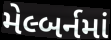
મેલ્બર્નમાં